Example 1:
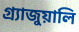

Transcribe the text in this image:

গ্র্যাজুয়ালি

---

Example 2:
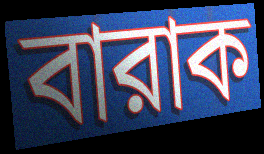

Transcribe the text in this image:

বারাক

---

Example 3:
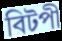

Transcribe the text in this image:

বিটপী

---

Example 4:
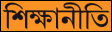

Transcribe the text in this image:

শিক্ষানীতি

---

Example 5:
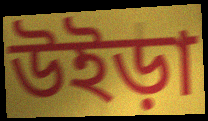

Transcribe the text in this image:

উইড়া